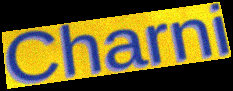
Charni